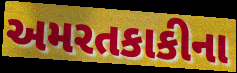
અમરતકાકીના